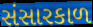
સંસારકાળ